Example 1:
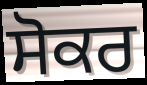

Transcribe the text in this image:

ਸੋਕਰ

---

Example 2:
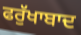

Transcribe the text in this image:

ਫਰੁੱਖਾਬਾਦ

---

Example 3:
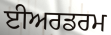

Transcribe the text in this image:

ਈਅਰਡਰਮ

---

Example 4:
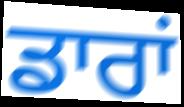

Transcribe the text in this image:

ਡਾਰਾਂ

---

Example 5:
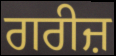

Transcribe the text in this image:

ਗਰੀਜ਼